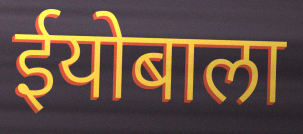
ईयोबाला